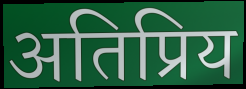
अतिप्रिय